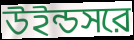
উইন্ডসরে